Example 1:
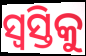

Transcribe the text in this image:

ସ୍ୱସ୍ତିକୁ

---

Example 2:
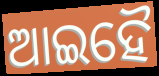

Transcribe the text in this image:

ଆଇହୈ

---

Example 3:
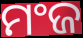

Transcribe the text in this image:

ମଂଜ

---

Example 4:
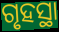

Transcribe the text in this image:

ଗୃହସ୍ଥା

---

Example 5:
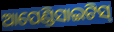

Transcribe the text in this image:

ଆପେଣ୍ଡିସାଇଟିସ୍